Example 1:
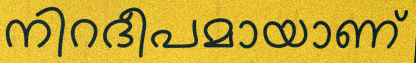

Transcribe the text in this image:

നിറദീപമായാണ്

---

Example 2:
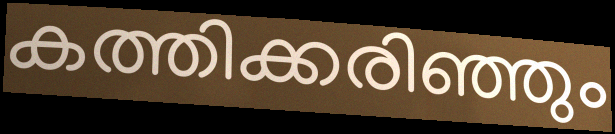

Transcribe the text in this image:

കത്തിക്കരിഞ്ഞും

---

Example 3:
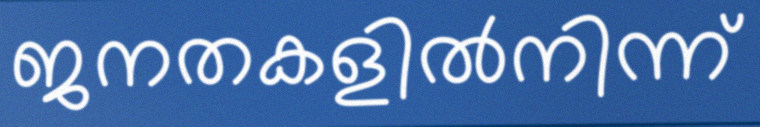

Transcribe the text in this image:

ജനതകളിൽനിന്ന്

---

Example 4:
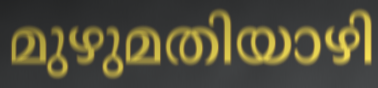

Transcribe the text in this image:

മുഴുമതിയാഴി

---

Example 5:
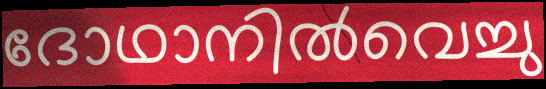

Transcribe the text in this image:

ദോഥാനിൽവെച്ചു